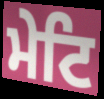
ਮੇਟਿ